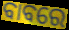
ବାବରେ